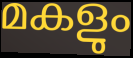
മകളും